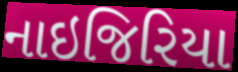
નાઇજિરિયા